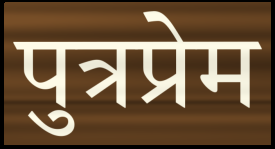
पुत्रप्रेम